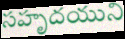
సహృదయుని